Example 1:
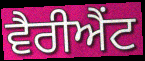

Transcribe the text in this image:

ਵੈਰੀਐਂਟ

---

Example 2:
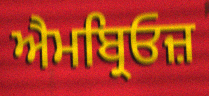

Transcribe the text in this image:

ਐਮਬ੍ਰਿਓਜ਼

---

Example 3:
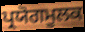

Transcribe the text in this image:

ਪ੍ਰਯੋਗਮੂਲਕ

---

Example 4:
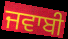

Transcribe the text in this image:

ਜਵਾਬੀ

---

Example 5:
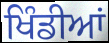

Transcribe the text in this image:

ਖਿੰਡੀਆਂ